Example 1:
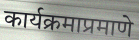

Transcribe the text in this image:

कार्यक्रमाप्रमाणे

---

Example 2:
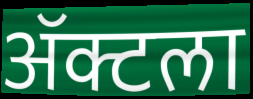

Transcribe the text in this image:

ॲक्टला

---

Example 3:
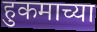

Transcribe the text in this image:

हुकमाच्या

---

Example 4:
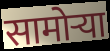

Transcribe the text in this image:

सामोऱ्या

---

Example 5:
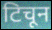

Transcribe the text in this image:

टिचून